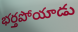
భర్తపోయాడు